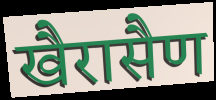
खैरासैण